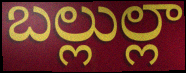
బల్లుల్లా